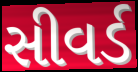
સીવર્ડ